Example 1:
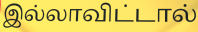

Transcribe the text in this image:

இல்லாவிட்டால்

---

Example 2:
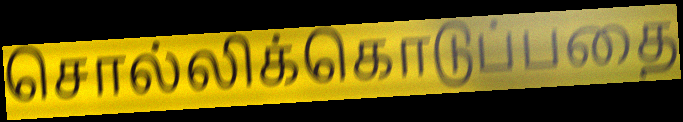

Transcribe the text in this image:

சொல்லிக்கொடுப்பதை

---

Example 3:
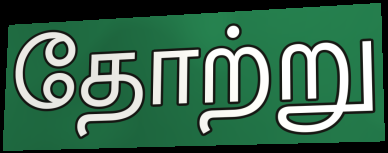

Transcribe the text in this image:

தோற்று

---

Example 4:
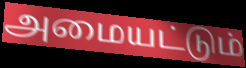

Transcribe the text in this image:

அமையட்டும்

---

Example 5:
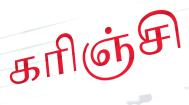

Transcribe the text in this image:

கரிஞ்சி